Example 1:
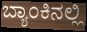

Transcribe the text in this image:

ಬ್ಯಾಂಕಿನಲ್ಲಿ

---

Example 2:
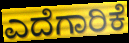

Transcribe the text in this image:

ಎದೆಗಾರಿಕೆ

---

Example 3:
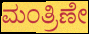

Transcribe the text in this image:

ಮಂತ್ರಿಣೇ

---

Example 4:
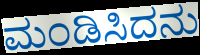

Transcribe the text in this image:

ಮಂಡಿಸಿದನು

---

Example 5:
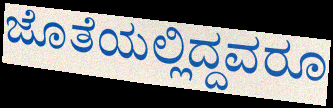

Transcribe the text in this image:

ಜೊತೆಯಲ್ಲಿದ್ದವರೂ